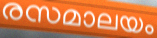
രസമാലയം